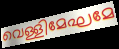
വെള്ളിമേഘമേ